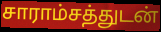
சாராம்சத்துடன்